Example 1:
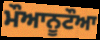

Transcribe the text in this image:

ਮੌਆਨੂਟੌਆ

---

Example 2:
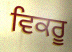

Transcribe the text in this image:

ਵਿਕਰੂ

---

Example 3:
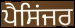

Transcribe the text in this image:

ਪੈਸਿਂਜਰ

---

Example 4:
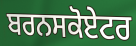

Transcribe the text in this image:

ਬਰਨਸਕੋਏਟਰ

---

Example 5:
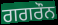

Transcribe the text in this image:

ਗਗਰੌਨ